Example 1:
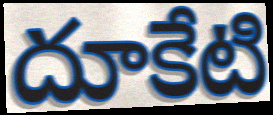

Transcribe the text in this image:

దూకేటి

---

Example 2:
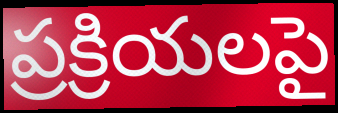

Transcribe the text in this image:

ప్రక్రియలపై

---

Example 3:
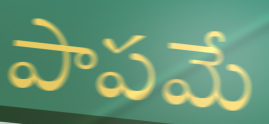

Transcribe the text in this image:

పాపమే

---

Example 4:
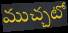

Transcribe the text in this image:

ముచ్చటో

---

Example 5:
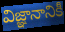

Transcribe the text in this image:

విజ్ఞానానికీ